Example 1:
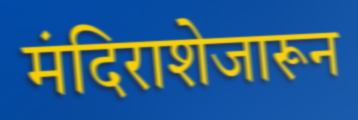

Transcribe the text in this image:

मंदिराशेजारून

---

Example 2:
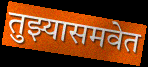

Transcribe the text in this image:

तुझ्यासमवेत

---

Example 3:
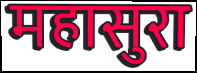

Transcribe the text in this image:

महासुरा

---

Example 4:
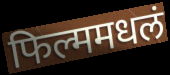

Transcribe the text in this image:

फिल्ममधलं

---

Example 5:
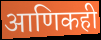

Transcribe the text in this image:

आणिकही